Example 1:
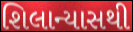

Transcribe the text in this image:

શિલાન્યાસથી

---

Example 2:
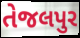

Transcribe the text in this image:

તેજલપુર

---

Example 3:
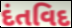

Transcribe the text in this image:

દંતવિદ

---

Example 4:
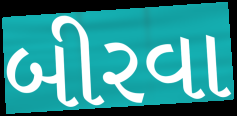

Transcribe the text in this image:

બીરવા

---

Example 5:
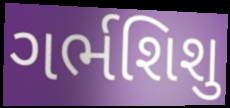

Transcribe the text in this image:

ગર્ભશિશુ